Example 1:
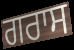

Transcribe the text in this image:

ਗਰਾਸ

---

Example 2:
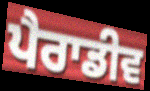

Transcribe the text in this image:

ਪੈਰਾਡੀਵ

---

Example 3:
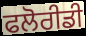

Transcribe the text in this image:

ਫਲੋਰੀਡੀ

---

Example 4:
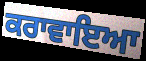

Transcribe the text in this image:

ਕਰਾਵਾਇਆ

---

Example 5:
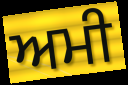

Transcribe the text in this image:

ਅਮੀ